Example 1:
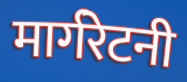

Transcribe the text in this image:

मार्गरेटनी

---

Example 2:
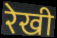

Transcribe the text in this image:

रेखी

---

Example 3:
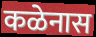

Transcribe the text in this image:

कळेनास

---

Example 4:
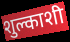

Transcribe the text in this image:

शुल्काशी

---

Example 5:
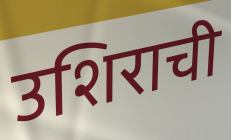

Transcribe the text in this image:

उशिराची